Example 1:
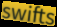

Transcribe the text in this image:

swifts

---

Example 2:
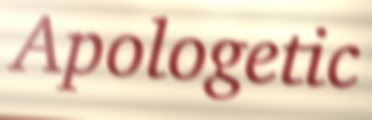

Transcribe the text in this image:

Apologetic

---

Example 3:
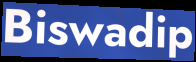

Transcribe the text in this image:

Biswadip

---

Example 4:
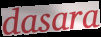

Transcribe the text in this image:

dasara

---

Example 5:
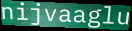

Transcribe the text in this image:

nijvaaglu